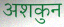
अशकुन